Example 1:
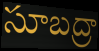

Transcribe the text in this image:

సూబద్రా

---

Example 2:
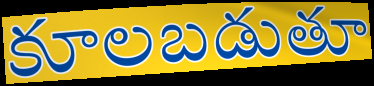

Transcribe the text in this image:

కూలబడుతూ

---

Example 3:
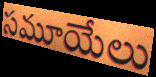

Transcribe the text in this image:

సమూయేలు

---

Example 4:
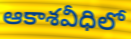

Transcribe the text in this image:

ఆకాశవీధిలో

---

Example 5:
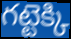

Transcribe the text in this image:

గట్టెక్కి